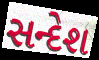
સન્દેશ